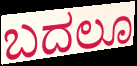
ಬದಲೂ